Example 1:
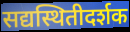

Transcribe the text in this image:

सद्यस्थितीदर्शक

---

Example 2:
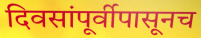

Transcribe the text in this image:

दिवसांपूर्वीपासूनच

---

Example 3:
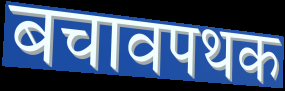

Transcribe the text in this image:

बचावपथक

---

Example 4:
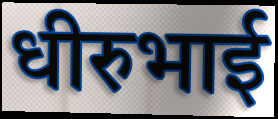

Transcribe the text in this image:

धीरुभाई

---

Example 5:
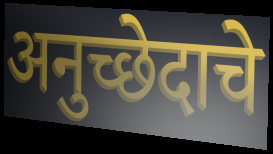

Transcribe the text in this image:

अनुच्छेदाचे